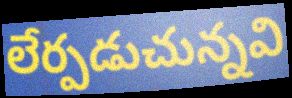
లేర్పడుచున్నవి